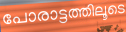
പോരാട്ടത്തിലൂടെ